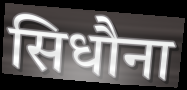
सिधौना